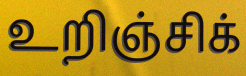
உறிஞ்சிக்